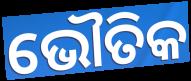
ଭୌତିକ